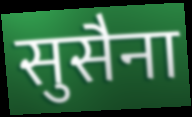
सुसैना